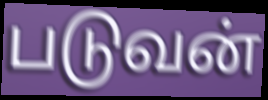
படுவன்